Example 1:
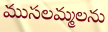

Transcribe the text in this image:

ముసలమ్మలను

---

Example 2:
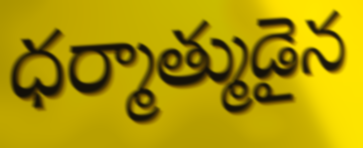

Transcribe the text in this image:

ధర్మాత్ముడైన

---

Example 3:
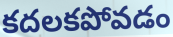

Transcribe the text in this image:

కదలకపోవడం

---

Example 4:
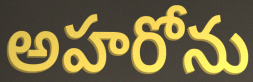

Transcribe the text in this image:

అహరోను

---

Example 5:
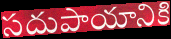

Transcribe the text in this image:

సదుపాయానికి